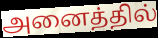
அனைத்தில்